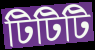
টিটিটি